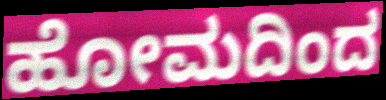
ಹೋಮದಿಂದ